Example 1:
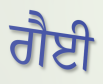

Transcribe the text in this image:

ਗੈਈ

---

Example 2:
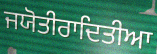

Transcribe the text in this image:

ਜਯੋਤੀਰਾਦਿਤੀਆ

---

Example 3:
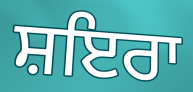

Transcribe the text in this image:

ਸ਼ਇਰਾ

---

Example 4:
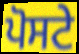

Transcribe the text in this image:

ਪੋਸਟੇ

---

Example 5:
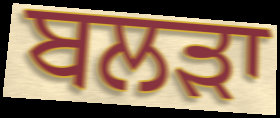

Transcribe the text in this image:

ਬਲੜਾ